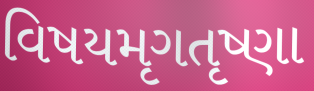
વિષયમૃગતૃષ્ણા